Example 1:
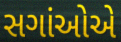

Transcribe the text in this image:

સગાંઓએ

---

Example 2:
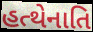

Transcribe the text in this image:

હત્થેનાતિ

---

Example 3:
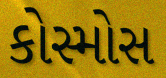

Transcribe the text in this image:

કોસ્મોસ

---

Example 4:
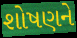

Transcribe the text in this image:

શોષણને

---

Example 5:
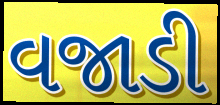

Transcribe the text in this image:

વજાડી